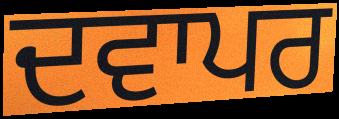
ਦਵਾਪਰ